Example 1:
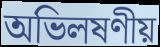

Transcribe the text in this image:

অভিলষণীয়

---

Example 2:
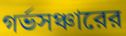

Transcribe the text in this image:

গর্ভসঞ্চারের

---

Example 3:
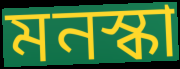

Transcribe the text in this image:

মনস্কা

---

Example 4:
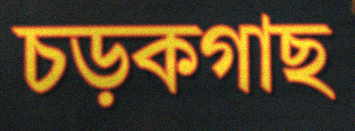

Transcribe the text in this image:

চড়কগাছ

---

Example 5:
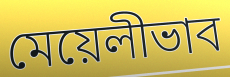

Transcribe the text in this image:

মেয়েলীভাব